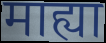
माह्या